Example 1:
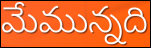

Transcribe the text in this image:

మేమున్నది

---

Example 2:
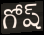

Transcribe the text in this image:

గోష్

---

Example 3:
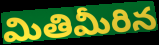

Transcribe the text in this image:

మితిమీరిన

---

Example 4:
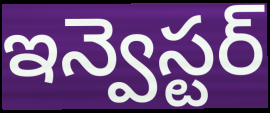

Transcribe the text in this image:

ఇన్వెస్టర్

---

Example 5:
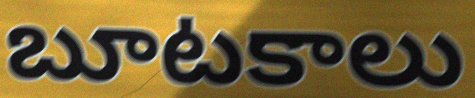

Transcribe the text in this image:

బూటకాలు